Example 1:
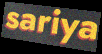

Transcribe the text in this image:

sariya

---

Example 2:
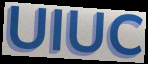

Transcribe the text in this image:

UIUC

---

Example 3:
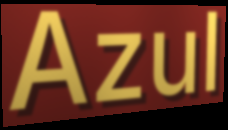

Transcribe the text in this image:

Azul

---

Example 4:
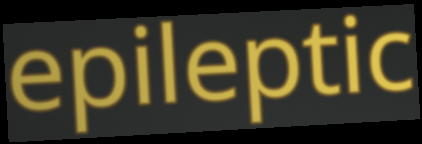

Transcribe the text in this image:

epileptic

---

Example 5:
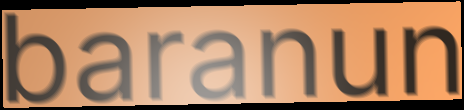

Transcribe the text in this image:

baranun